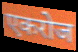
एकरोज